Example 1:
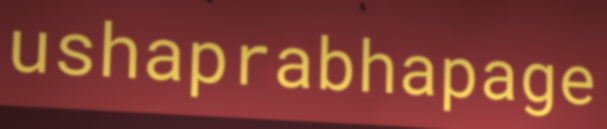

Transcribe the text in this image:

ushaprabhapage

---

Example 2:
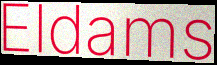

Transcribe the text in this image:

Eldams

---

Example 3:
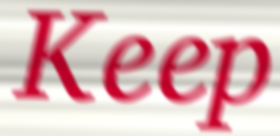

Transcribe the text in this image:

Keep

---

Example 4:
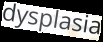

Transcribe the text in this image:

dysplasia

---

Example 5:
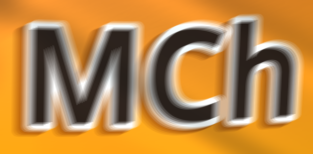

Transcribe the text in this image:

MCh